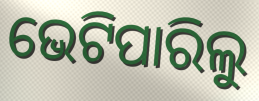
ଭେଟିପାରିଲୁ